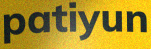
patiyun